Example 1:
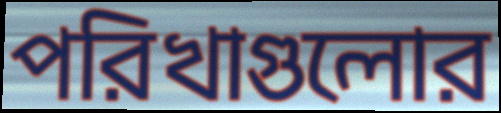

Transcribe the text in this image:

পরিখাগুলোর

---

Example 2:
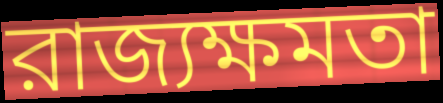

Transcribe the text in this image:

রাজ্যক্ষমতা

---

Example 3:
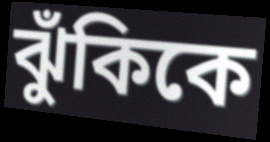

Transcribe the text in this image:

ঝুঁকিকে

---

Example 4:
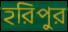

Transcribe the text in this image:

হরিপুর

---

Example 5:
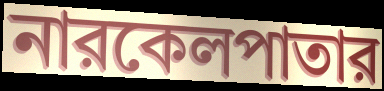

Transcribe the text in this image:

নারকেলপাতার